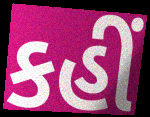
કહીં